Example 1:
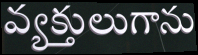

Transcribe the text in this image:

వ్యక్తులుగాను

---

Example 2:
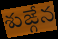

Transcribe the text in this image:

శుఙ్గేన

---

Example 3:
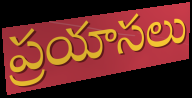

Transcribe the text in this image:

ప్రయాసలు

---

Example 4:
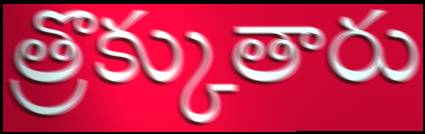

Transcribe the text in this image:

త్రొక్కుతారు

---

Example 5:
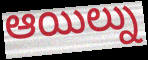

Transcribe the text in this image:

ఆయిల్ను